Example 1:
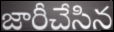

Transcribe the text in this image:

జారీచేసిన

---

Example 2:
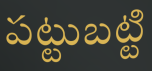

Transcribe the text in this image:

పట్టుబట్టి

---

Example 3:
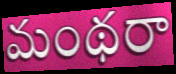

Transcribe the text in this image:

మంథరా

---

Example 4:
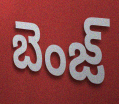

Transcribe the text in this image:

బెంజ్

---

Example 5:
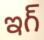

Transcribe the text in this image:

ఇగ్